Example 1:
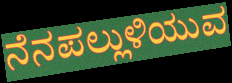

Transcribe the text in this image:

ನೆನಪಲ್ಲುಳಿಯುವ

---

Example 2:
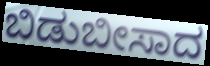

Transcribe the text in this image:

ಬಿಡುಬೀಸಾದ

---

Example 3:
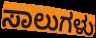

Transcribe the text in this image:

ಸಾಲುಗಳು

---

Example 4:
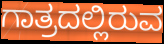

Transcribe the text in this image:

ಗಾತ್ರದಲ್ಲಿರುವ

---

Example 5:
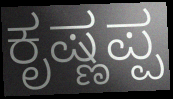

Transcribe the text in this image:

ಕೃಷ್ಣಪ್ಪ